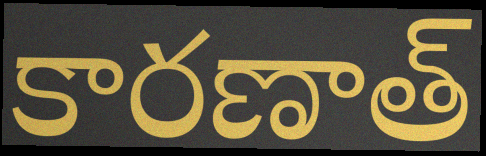
కారణాత్